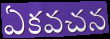
ఏకవచన